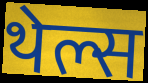
थेल्स